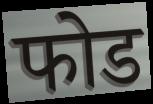
फोड